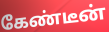
கேண்டீன்